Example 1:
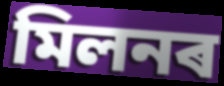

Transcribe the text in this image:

মিলনৰ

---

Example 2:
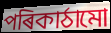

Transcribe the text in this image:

পৰিকাঠামো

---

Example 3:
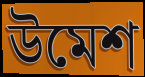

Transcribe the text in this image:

উমেশ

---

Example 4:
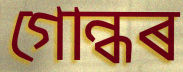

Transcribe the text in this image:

গোন্ধৰ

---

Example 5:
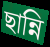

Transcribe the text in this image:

ছান্নি